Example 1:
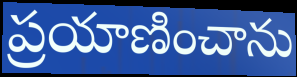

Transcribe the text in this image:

ప్రయాణించాను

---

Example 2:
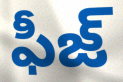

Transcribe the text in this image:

ఫీజ్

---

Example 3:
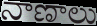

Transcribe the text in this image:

నాణాలు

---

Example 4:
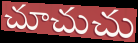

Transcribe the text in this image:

చూచుచు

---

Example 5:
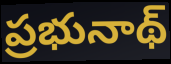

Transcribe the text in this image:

ప్రభునాథ్